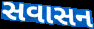
સવાસન